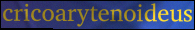
cricoarytenoideus